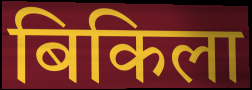
बिकिला